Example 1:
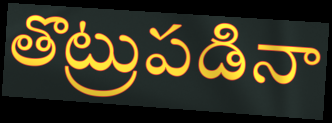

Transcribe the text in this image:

తొట్రుపడినా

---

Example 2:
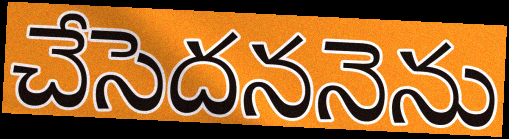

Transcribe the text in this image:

చేసెదననెను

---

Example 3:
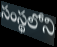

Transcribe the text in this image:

సంస్థలోని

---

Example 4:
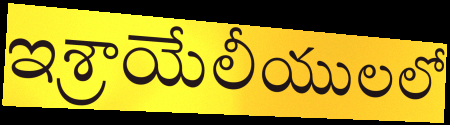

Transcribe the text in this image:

ఇశ్రాయేలీయులలో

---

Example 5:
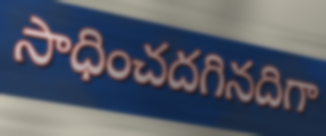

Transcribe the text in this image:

సాధించదగినదిగా